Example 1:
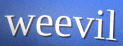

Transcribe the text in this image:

weevil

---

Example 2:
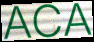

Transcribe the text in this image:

ACA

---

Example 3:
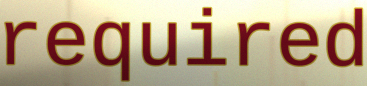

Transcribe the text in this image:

required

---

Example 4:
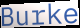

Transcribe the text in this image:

Burke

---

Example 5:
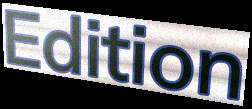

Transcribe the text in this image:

Edition